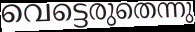
വെട്ടെരുതെന്നു